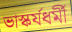
ভাস্কর্যধর্মী